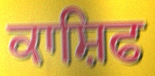
ਕਾਸ਼ਿਫ